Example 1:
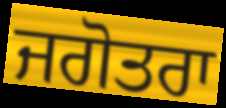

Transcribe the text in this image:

ਜਗੋਤਰਾ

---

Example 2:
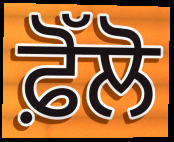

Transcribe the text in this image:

ਫ਼ੋੱਲੋ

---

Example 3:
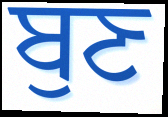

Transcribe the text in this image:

ਬੁਣ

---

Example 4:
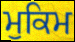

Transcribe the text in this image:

ਮੁਕਿਮ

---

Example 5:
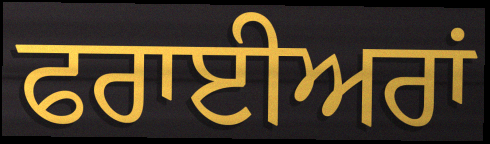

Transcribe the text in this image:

ਫਰਾਈਅਰਾਂ